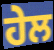
ਹੇਲ